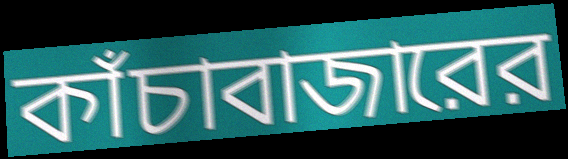
কাঁচাবাজারের